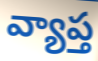
వ్యాప్త